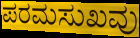
ಪರಮಸುಖವು